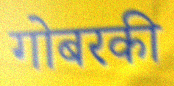
गोबरकी